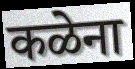
कळेना